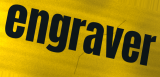
engraver